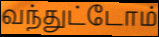
வந்துட்டோம்